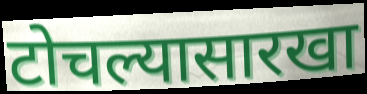
टोचल्यासारखा